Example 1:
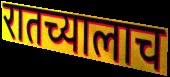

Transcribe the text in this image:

रातच्यालाच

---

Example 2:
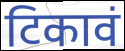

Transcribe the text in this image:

टिकावं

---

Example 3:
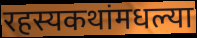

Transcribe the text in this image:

रहस्यकथांमधल्या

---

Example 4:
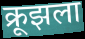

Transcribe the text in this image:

क्रूझला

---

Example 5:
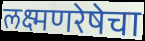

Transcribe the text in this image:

लक्ष्मणरेषेचा